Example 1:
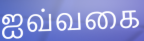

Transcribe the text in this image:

ஐவ்வகை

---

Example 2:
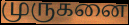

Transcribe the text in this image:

முருகனை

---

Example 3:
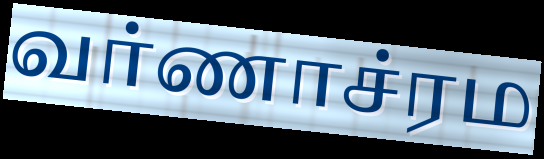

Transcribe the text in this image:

வர்ணாச்ரம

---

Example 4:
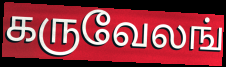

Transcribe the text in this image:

கருவேலங்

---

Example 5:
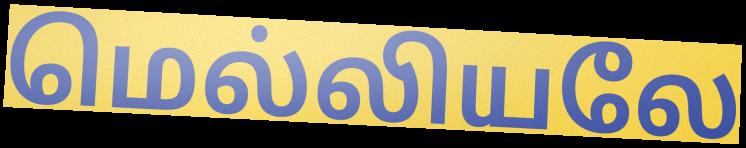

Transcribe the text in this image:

மெல்லியலே